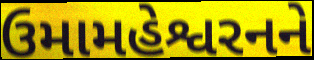
ઉમામહેશ્વરનને